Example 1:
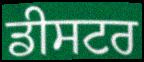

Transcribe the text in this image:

ਡੀਸਟਰ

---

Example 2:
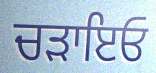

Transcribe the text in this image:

ਚੜਾਇਓ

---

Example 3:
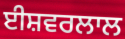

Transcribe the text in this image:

ਈਸ਼ਵਰਲਾਲ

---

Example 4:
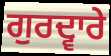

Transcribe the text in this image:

ਗੁਰਦ੍ਵਾਰੇ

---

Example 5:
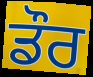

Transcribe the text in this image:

ਡੌਰ